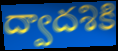
ద్వాదశికి